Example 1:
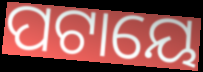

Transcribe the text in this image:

ପଟାୟେ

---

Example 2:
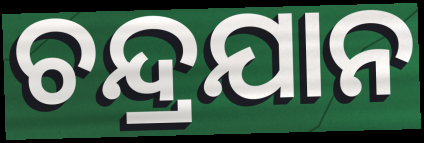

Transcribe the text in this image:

ଚନ୍ଦ୍ରଯାନ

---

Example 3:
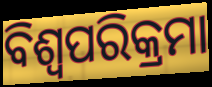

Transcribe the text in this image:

ବିଶ୍ୱପରିକ୍ରମା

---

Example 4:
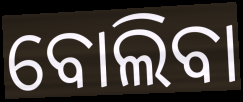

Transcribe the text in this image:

ବୋଲିବା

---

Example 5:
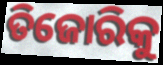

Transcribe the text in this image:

ତିଜୋରିକୁ